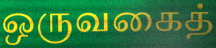
ஒருவகைத்